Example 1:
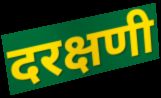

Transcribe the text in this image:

दरक्षणी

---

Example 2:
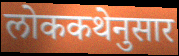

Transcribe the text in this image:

लोककथेनुसार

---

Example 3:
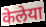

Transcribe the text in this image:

केलेया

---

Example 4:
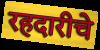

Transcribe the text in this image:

रहदारीचे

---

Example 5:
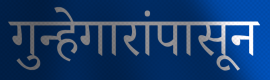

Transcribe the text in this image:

गुन्हेगारांपासून